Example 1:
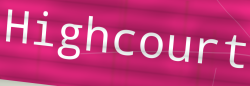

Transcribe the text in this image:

Highcourt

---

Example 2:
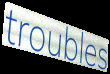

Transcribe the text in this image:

troubles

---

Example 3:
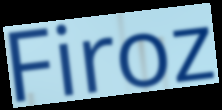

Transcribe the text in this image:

Firoz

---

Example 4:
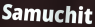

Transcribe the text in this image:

Samuchit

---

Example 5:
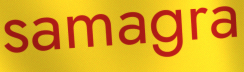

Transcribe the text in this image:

samagra